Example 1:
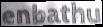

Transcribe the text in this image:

enbathu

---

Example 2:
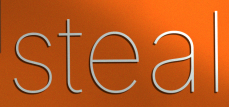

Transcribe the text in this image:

steal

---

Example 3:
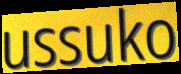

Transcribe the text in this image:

ussuko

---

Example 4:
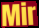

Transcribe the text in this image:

Mir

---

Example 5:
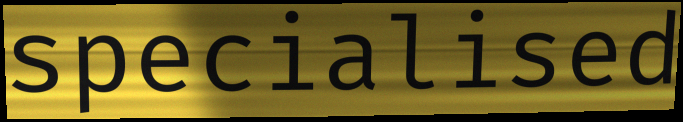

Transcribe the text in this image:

specialised